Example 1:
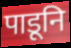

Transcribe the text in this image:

पाडूनि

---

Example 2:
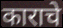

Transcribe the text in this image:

काराचे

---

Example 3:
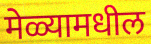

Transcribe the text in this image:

मेळ्यामधील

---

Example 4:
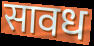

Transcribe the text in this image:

सावध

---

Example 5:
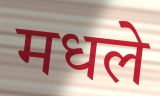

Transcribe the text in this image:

मधले